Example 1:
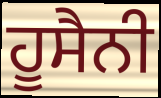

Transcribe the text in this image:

ਹੂਸੈਨੀ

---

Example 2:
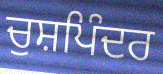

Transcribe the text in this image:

ਚੁਸ਼ਪਿੰਦਰ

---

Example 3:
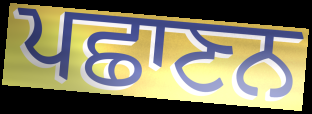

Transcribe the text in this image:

ਪਛਾਣਨ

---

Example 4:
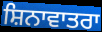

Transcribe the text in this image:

ਸ਼ਿਨਾਵਾਤਰਾ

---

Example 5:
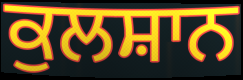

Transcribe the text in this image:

ਕੁਲਸ਼ਾਨ